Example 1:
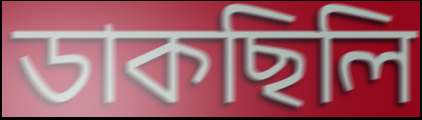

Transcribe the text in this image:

ডাকছিলি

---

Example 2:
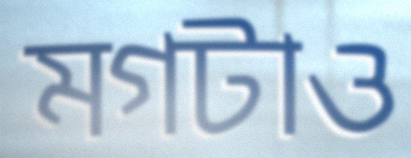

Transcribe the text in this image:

মগটাও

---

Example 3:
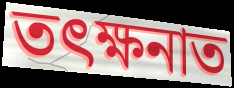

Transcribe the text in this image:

তৎক্ষনাত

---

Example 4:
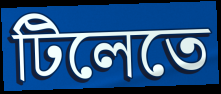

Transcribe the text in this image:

টিলেতে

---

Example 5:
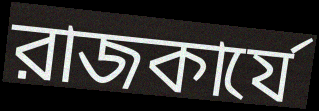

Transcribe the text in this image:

রাজকার্যে